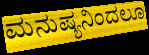
ಮನುಷ್ಯನಿಂದಲೂ